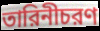
তারিনীচরণ